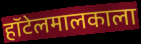
हॉटेलमालकाला